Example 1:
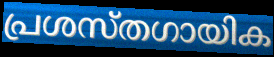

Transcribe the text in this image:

പ്രശസ്തഗായിക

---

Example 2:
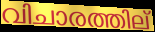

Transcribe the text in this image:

വിചാരത്തില്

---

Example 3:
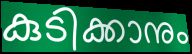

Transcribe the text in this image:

കുടിക്കാനും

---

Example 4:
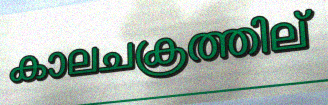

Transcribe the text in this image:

കാലചക്രത്തില്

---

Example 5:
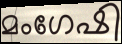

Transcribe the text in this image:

മംഗേഷി